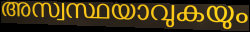
അസ്വസ്ഥയാവുകയും